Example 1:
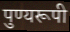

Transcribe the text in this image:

पुण्यरूपी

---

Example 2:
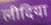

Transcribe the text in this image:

लीदिया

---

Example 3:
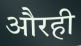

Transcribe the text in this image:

औरही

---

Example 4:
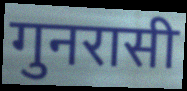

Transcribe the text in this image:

गुनरासी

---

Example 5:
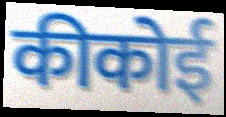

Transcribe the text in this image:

कीकोई